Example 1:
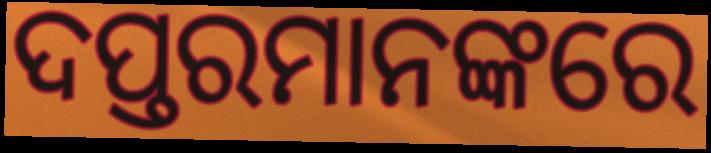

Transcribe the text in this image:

ଦପ୍ତରମାନଙ୍କରେ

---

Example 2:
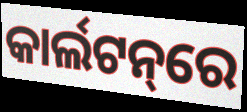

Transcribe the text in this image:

କାର୍ଲଟନ୍‌ରେ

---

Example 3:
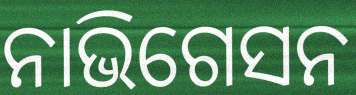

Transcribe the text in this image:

ନାଭିଗେସନ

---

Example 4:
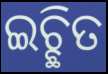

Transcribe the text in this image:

ଇଚ୍ଛିତ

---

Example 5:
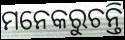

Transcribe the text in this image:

ମନେକରୁଚନ୍ତି